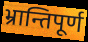
भ्रान्तिपूर्ण